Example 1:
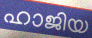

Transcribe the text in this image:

ഹാജിയ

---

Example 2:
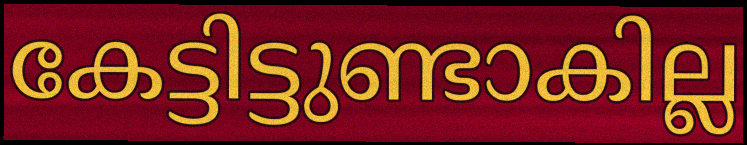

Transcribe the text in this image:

കേട്ടിട്ടുണ്ടാകില്ല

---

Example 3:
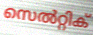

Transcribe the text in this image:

സെൽറ്റിക്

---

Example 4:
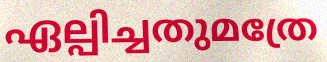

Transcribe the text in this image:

ഏല്പിച്ചതുമത്രേ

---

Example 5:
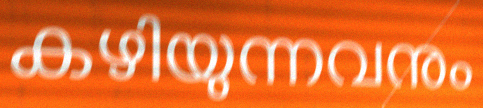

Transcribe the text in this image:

കഴിയുന്നവനും